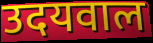
उदयवाल